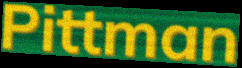
Pittman